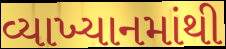
વ્યાખ્યાનમાંથી